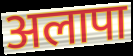
अलापा